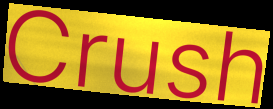
Crush